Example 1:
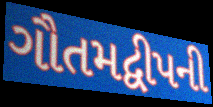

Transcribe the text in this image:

ગૌતમદ્વીપની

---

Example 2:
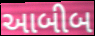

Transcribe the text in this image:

આબીબ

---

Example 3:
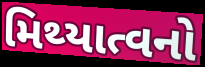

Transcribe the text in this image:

મિથ્યાત્વનો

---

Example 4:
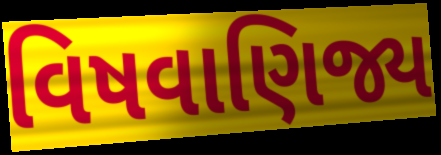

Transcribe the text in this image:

વિષવાણિજ્ય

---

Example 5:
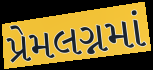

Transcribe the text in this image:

પ્રેમલગ્નમાં